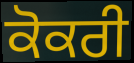
ਕੋਕਰੀ